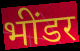
भींडर